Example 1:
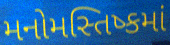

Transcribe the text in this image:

મનોમસ્તિષ્કમાં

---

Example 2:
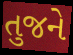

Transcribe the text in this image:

તુજને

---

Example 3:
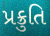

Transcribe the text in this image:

પ્રક્રુતિ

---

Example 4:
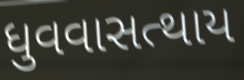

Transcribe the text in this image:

ધુવવાસત્થાય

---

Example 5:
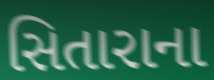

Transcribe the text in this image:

સિતારાના